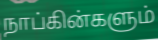
நாப்கின்களும்